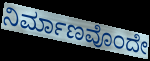
ನಿರ್ಮಾಣವೊಂದೇ